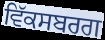
ਵਿੱਕਸਬਰਗ